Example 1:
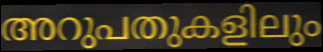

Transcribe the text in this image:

അറുപതുകളിലും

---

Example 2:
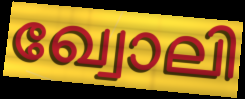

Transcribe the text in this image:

ഖ്വോലി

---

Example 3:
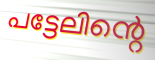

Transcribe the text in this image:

പട്ടേലിന്റെ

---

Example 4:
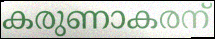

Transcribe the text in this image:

കരുണാകരന്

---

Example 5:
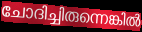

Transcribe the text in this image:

ചോദിച്ചിരുന്നെങ്കിൽ